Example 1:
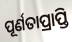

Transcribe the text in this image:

ପୂର୍ଣତାପ୍ରାପ୍ତି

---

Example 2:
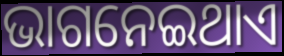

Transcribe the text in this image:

ଭାଗନେଇଥାଏ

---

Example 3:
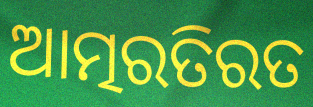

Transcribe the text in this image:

ଆତ୍ମରତିରତ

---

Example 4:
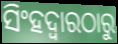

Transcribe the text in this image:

ସିଂହଦ୍ୱାରଠାରୁ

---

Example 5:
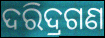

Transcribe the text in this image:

ଦରିଦ୍ରଗଣ